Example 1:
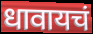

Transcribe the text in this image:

धावायचं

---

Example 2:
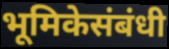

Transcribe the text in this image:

भूमिकेसंबंधी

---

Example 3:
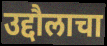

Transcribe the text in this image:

उद्दौलाचा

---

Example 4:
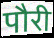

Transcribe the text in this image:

पौरी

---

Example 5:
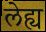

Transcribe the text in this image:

लेह्य